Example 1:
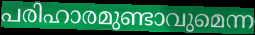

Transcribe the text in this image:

പരിഹാരമുണ്ടാവുമെന്ന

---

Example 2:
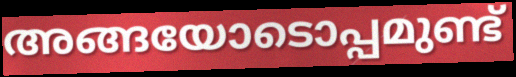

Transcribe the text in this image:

അങ്ങയോടൊപ്പമുണ്ട്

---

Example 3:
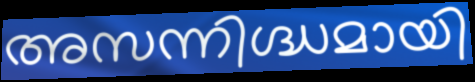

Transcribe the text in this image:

അസന്നിഗ്ദ്ധമായി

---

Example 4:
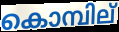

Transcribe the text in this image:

കൊമ്പില്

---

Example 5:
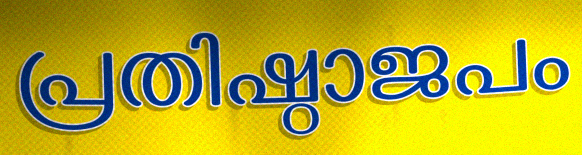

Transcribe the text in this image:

പ്രതിഷ്ഠാജപം